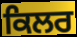
ਕਿਲਰ